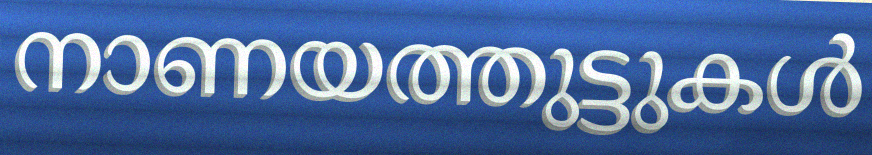
നാണയത്തുട്ടുകൾ